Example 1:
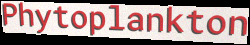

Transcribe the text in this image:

Phytoplankton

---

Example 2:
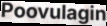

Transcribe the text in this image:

Poovulagin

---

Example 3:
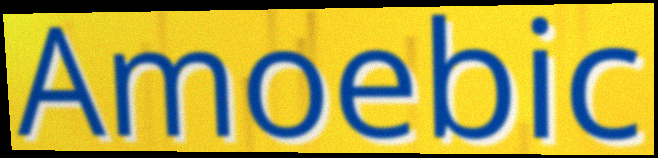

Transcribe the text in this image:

Amoebic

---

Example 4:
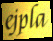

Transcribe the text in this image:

ejpla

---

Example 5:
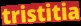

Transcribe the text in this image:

tristitia